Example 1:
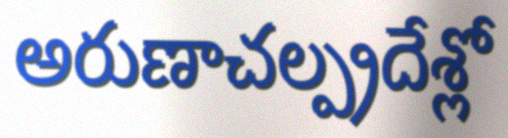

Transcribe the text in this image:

అరుణాచల్ప్రదేశ్లో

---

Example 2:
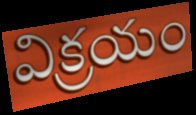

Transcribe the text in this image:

విక్రయం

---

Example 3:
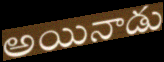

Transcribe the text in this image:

అయినాడు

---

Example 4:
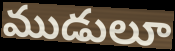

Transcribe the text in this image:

ముడులూ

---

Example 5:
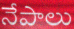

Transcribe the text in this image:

నేపాలు